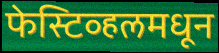
फेस्टिव्हलमधून